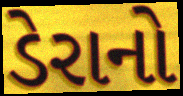
ડેરાનો